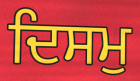
ਦਿਸਮੁ